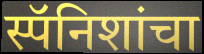
स्पॅनिशांचा